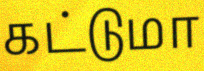
கட்டுமா